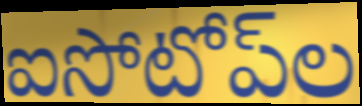
ఐసోటోప్‌ల